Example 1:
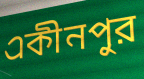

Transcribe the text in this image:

একীনপুর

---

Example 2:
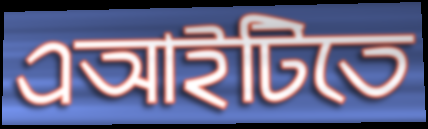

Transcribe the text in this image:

এআইটিতে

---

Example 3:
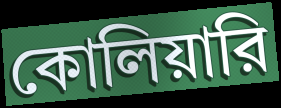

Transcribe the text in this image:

কোলিয়ারি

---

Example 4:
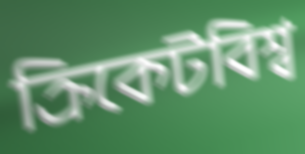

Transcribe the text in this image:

ক্রিকেটবিশ্ব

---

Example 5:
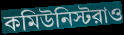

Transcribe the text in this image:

কমিউনিস্টরাও